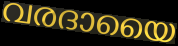
വരദായൈ